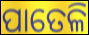
ପାତେଳି